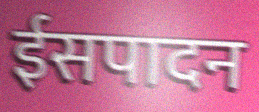
ईसपादन